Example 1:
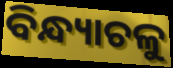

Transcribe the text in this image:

ବିନ୍ଧ୍ୟାଚଳୁ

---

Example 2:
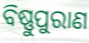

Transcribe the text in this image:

ବିଷ୍ଣୁପୁରାଣ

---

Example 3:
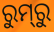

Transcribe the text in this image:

ରୁମ୍‌ରୁ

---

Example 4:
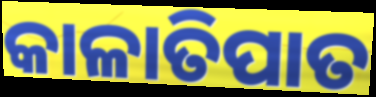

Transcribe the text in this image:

କାଳାତିପାତ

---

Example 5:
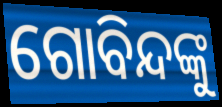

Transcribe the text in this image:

ଗୋବିନ୍ଦଙ୍କୁ